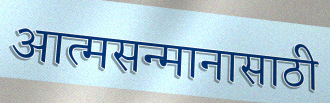
आत्मसन्मानासाठी